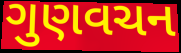
ગુણવચન